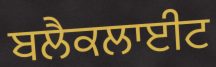
ਬਲੈਕਲਾਈਟ